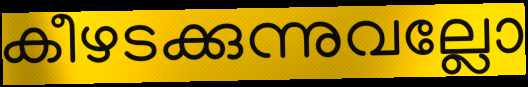
കീഴടക്കുന്നുവല്ലോ